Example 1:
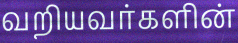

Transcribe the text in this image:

வறியவர்களின்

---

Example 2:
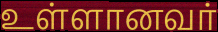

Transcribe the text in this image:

உள்ளானவர்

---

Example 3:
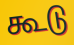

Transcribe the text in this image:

கூடு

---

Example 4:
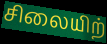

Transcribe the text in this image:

சிலையிற்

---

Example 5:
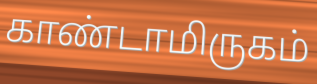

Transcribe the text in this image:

காண்டாமிருகம்